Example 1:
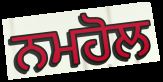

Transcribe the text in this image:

ਨਮਹੋਲ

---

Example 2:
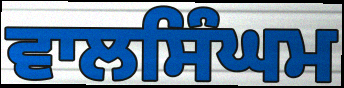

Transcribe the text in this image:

ਵਾਲਸਿੰਘਮ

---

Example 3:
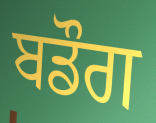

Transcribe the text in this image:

ਬਡੌਗ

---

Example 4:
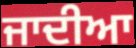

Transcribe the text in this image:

ਜਾਦੀਆ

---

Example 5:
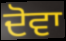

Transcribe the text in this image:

ਦੋਵਾ